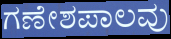
ಗಣೇಶಪಾಲವು